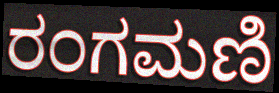
ರಂಗಮಣಿ